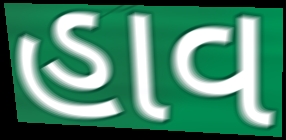
હાવ